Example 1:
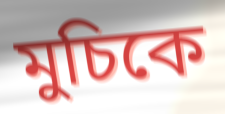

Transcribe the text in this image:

মুচিকে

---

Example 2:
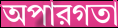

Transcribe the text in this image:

অপারগতা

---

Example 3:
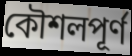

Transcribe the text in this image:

কৌশলপূর্ণ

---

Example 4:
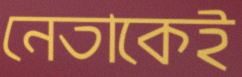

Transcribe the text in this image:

নেতাকেই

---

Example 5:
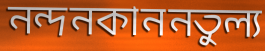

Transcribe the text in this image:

নন্দনকাননতুল্য